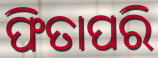
ଫିତାପରି